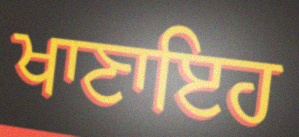
ਖਾਣਾਇਹ